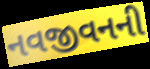
નવજીવનની